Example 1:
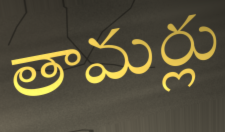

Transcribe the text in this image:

తామర్లు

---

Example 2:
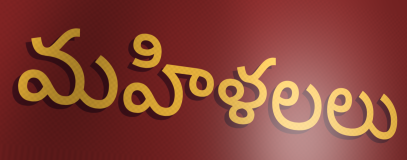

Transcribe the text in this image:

మహిళలలు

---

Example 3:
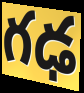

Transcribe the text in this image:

గఢ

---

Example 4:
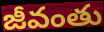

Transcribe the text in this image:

జీవంతు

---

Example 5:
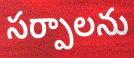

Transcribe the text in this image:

సర్పాలను